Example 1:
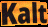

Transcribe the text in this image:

Kalt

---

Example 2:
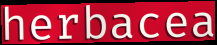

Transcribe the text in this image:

herbacea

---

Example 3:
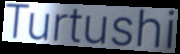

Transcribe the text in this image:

Turtushi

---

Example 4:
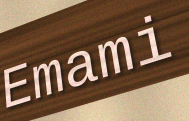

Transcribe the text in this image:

Emami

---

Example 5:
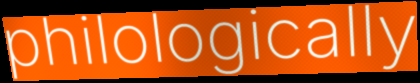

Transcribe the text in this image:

philologically